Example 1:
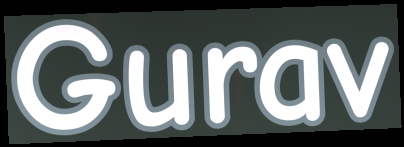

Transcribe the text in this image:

Gurav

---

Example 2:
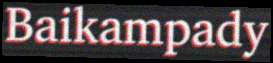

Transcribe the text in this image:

Baikampady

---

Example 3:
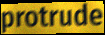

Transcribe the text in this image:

protrude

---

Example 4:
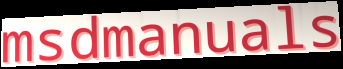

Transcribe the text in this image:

msdmanuals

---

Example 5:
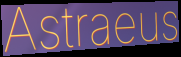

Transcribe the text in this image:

Astraeus